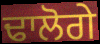
ਢਾਲੋਗੇ